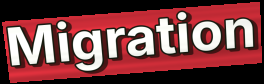
Migration